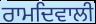
ਰਾਮਦਿਵਾਲੀ